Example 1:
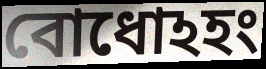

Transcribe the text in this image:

বোধোঽহং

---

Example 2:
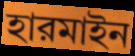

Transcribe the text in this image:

হারমাইন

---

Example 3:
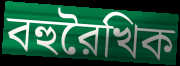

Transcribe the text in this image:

বহুরৈখিক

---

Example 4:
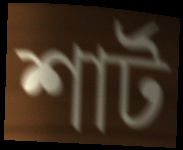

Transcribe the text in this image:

শার্ট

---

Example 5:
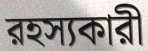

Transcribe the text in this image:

রহস্যকারী